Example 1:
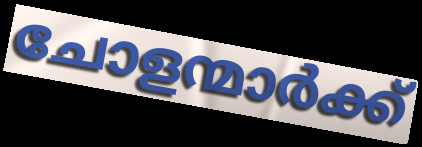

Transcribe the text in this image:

ചോളന്മാർക്ക്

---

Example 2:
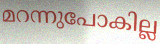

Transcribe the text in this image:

മറന്നുപോകില്ല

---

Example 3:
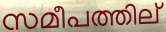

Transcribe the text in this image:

സമീപത്തില്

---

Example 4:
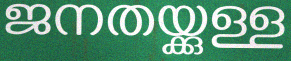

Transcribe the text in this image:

ജനതയ്ക്കുള്ള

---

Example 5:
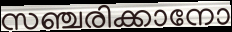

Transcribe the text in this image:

സഞ്ചരിക്കാനോ